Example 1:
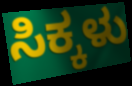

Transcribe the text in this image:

ಸಿಕ್ಕಳು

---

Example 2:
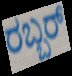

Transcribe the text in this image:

ರಬ್ಬರ್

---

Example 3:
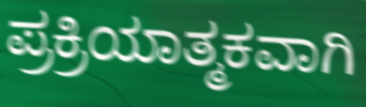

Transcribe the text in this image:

ಪ್ರಕ್ರಿಯಾತ್ಮಕವಾಗಿ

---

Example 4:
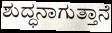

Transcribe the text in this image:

ಶುದ್ಧನಾಗುತ್ತಾನೆ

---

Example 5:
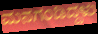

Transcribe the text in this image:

ಮನಗಂಡಿದ್ದಳು